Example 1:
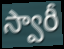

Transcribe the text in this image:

స్వారీ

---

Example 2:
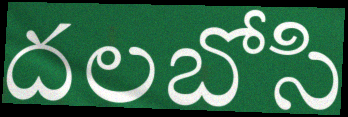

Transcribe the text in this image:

దలబోసి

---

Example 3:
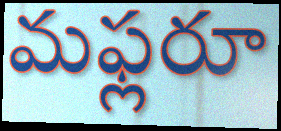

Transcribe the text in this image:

మఫ్లరూ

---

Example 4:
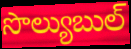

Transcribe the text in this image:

సొల్యుబుల్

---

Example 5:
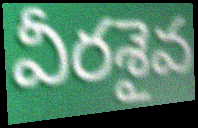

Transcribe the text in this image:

వీరశైవ